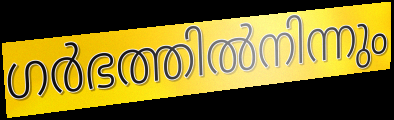
ഗർഭത്തിൽനിന്നും